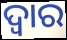
ଦ୍ବାର